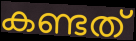
കണ്ടത്